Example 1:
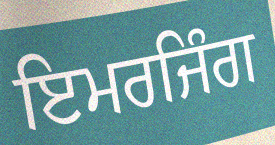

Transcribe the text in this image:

ਇਮਰਜਿੰਗ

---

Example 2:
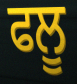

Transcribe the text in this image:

ਫਲੂ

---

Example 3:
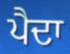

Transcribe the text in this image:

ਪੈਦਾ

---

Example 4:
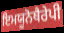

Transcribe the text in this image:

ਇਮਯੂਨੋਥੈਰੇਪੀ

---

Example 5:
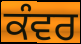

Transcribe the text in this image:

ਕੰਵਰ